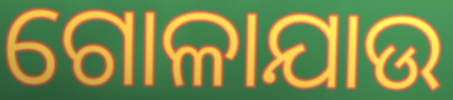
ଗୋଳାଯାଉ